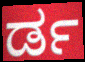
ರ್ಡ